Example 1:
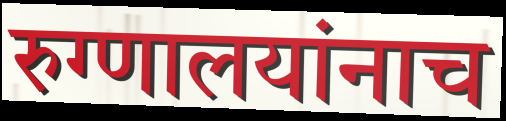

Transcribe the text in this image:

रुग्णालयांनाच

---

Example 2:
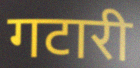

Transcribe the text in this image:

गटारी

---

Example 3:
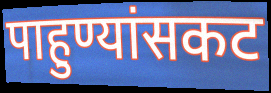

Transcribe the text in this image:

पाहुण्यांसकट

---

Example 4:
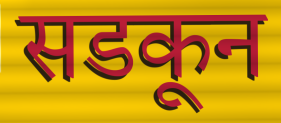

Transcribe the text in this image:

सडकून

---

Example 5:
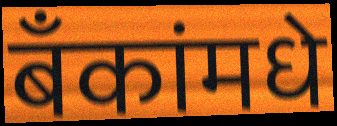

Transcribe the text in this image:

बँकांमधे